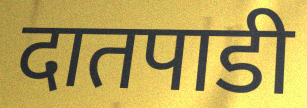
दातपाडी